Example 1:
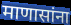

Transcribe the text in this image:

माणासांना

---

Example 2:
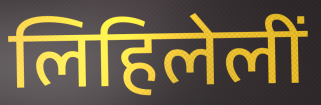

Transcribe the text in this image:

लिहिलेलीं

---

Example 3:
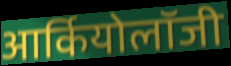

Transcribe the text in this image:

आर्कियोलॉजी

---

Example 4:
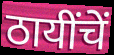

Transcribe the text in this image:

ठायींचें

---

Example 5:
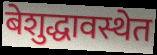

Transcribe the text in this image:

बेशुद्धावस्थेत